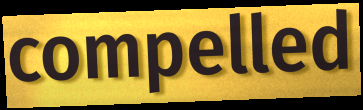
compelled